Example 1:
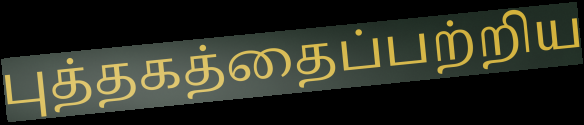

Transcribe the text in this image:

புத்தகத்தைப்பற்றிய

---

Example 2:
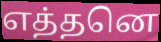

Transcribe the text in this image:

எத்தனெ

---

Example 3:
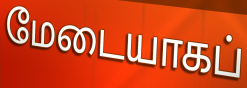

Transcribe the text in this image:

மேடையாகப்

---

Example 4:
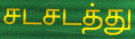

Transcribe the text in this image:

சடசடத்து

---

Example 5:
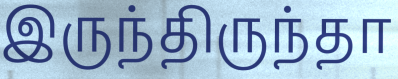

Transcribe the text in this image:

இருந்திருந்தா